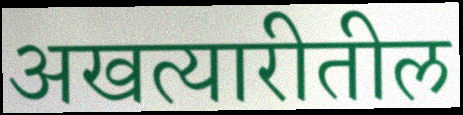
अखत्यारीतील